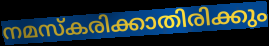
നമസ്കരിക്കാതിരിക്കും